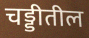
चड्डीतील